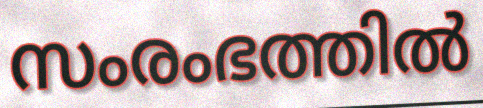
സംരംഭത്തിൽ